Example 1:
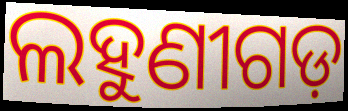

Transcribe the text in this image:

ଲହୁଣୀଗଡ଼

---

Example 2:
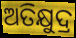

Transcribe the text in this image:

ଅତିକ୍ଷୁଦ୍ର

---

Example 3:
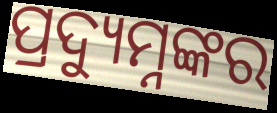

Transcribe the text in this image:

ପ୍ରଦ୍ୟୁମ୍ନଙ୍କର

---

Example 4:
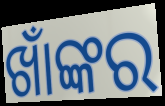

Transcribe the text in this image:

ଖାଁଙ୍କର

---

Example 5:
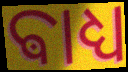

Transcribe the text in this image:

ଵାଧ୍ୟ